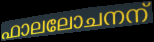
ഫാലലോചനന്